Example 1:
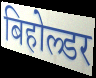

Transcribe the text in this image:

बिहोल्डर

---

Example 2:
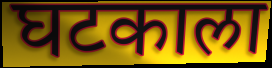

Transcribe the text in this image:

घटकाला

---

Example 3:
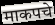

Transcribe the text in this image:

माकपचे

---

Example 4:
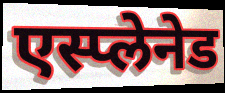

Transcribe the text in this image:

एस्प्लेनेड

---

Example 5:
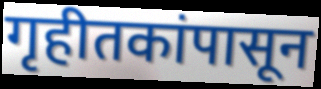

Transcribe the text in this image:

गृहीतकांपासून